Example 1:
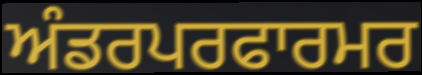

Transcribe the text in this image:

ਅੰਡਰਪਰਫਾਰਮਰ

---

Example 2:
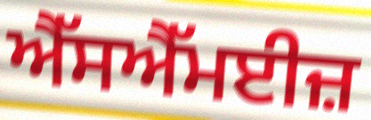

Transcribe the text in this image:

ਐੱਸਐੱਮਈਜ਼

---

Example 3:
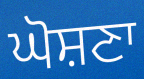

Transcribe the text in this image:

ਘੋਸ਼ਣਾ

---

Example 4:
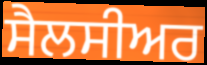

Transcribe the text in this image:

ਸੈਲਸੀਅਰ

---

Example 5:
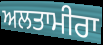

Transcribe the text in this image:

ਅਲਤਾਮੀਰਾ